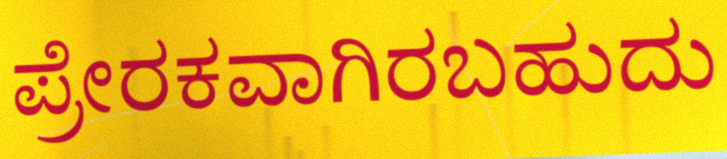
ಪ್ರೇರಕವಾಗಿರಬಹುದು